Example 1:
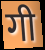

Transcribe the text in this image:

गी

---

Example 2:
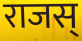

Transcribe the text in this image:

राजस्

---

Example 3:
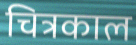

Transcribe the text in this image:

चित्रकाल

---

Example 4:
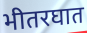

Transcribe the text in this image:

भीतरघात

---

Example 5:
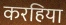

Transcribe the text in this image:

करहिया